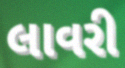
લાવરી